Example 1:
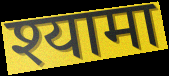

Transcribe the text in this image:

श्‍यामा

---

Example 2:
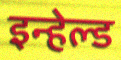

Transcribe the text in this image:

इन्हेल्ड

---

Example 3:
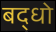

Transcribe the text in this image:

बद्धो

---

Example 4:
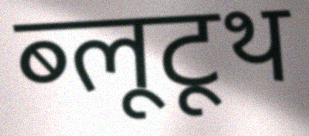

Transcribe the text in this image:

ब्‍लूटूथ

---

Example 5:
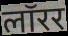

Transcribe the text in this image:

लॉरर